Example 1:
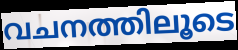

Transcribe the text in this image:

വചനത്തിലൂടെ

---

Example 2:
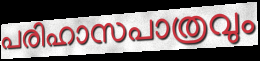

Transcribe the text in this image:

പരിഹാസപാത്രവും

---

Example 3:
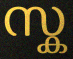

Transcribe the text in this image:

സ്ക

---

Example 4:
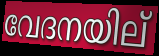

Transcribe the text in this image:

വേദനയില്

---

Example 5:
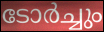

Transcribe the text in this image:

ടോർച്ചും